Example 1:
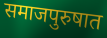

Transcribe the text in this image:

समाजपुरुषात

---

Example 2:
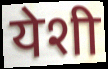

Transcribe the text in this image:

येशी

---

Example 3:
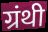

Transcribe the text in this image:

ग्रंथी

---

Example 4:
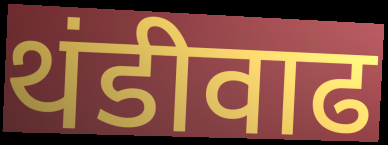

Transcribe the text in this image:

थंडीवाढ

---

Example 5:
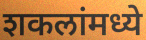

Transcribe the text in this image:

शकलांमध्ये